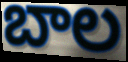
బాల